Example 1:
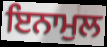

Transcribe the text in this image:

ਇਨਾਮੁਲ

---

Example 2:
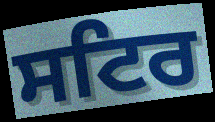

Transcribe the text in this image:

ਸਟਿਰ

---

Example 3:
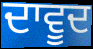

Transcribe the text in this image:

ਦਾਵੂਦ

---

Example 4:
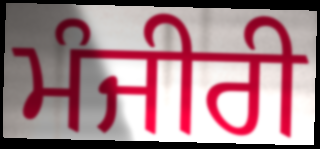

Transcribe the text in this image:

ਮੰਜੀਰੀ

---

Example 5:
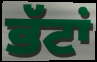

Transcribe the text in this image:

ਭੱਟਾਂ